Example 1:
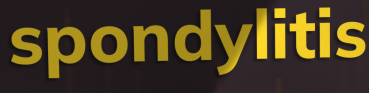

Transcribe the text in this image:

spondylitis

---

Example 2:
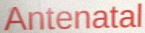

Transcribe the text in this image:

Antenatal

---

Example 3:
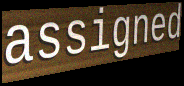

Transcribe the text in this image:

assigned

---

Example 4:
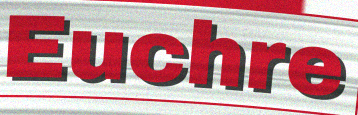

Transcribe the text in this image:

Euchre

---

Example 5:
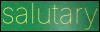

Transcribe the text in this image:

salutary